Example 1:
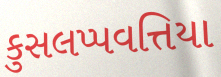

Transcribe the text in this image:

કુસલપ્પવત્તિયા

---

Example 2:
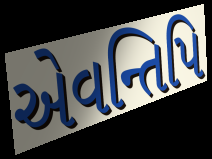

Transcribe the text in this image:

એવન્તિપિ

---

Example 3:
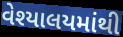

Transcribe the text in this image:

વેશ્યાલયમાંથી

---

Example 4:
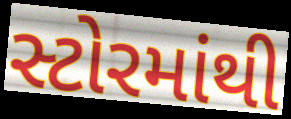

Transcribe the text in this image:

સ્ટોરમાંથી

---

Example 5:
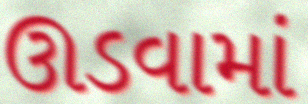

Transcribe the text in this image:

ઊડવામાં